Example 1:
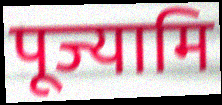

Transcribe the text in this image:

पूज्यामि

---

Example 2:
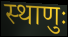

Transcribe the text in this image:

स्थाणुः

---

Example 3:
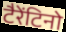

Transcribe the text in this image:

टैरेंटिनो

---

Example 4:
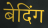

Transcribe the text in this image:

बेदिंग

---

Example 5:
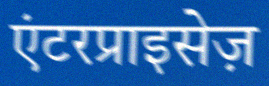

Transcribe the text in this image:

एंटरप्राइसेज़